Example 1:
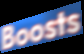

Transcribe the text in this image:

Boosts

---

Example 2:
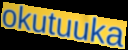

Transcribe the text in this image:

okutuuka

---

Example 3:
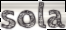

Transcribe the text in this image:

sola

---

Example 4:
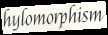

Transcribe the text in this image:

hylomorphism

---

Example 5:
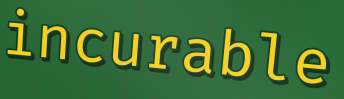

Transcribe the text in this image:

incurable